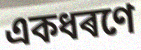
একধৰণে